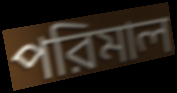
পরিমাল